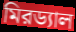
মিরড্যাল